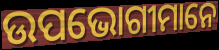
ଉପଭୋଗୀମାନେ